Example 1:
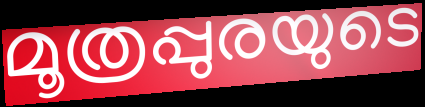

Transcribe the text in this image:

മൂത്രപ്പുരയുടെ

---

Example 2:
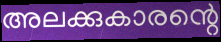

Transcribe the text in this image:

അലക്കുകാരന്റെ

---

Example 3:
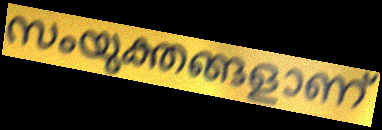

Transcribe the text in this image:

സംയുക്തങ്ങളാണ്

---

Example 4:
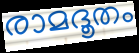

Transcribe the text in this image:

രാമദൂതം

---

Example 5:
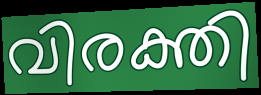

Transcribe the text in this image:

വിരക്തി